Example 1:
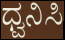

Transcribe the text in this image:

ಧ್ವನಿಸಿ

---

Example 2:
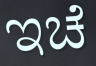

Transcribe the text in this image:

ಇಚೆ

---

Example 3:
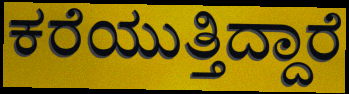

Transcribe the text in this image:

ಕರೆಯುತ್ತಿದ್ದಾರೆ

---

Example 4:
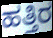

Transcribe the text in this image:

ಹತ್ತಿರ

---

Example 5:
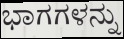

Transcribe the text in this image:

ಭಾಗಗಳನ್ನು